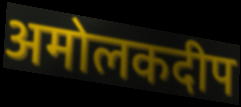
अमोलकदीप